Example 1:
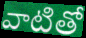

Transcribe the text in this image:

వాటితో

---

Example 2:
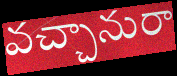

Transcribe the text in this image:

వచ్చానురా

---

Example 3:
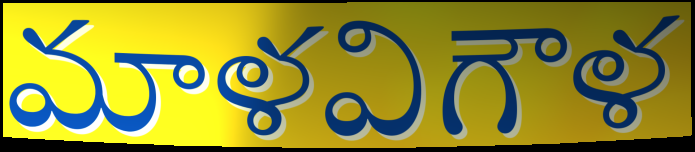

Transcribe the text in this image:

మాళవిగౌళ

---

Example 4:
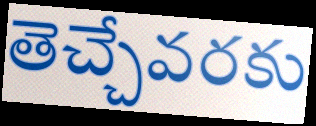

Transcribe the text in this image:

తెచ్చేవరకు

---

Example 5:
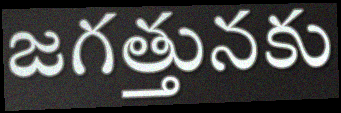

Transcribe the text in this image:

జగత్తునకు